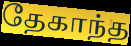
தேகாந்த